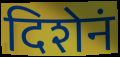
दिशेनं